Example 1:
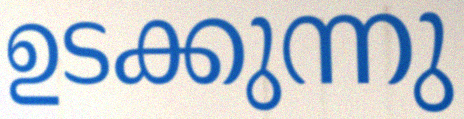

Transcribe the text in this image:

ഉടക്കുന്നു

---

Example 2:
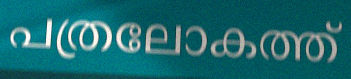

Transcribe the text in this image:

പത്രലോകത്ത്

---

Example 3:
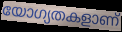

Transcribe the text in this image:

യോഗ്യതകളാണ്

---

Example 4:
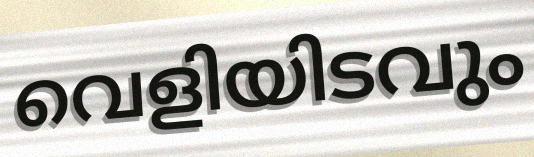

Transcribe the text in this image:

വെളിയിടവും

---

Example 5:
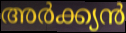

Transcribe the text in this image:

അർക്ക്യൻ